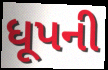
ધૂપની